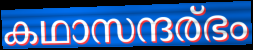
കഥാസന്ദര്ഭം